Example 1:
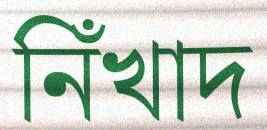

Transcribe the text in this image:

নিঁখাদ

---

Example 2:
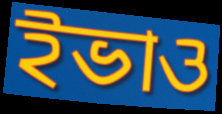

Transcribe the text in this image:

ইভাও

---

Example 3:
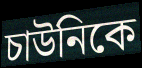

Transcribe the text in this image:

চাউনিকে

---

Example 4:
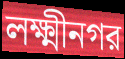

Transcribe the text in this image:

লক্ষ্মীনগর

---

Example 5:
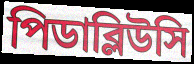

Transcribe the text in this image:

পিডাব্লিউসি